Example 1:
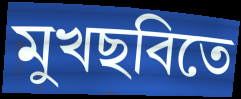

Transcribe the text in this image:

মুখছবিতে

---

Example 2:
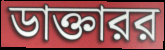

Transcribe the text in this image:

ডাক্তারর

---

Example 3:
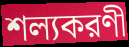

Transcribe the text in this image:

শল্যকরণী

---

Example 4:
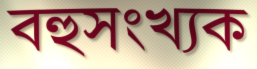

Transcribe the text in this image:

বহুসংখ্যক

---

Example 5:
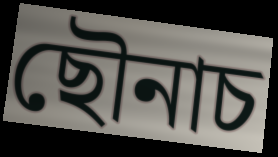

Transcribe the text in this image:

ছৌনাচ